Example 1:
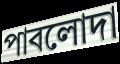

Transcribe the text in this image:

পাবলোদা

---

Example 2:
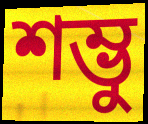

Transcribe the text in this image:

শম্ভু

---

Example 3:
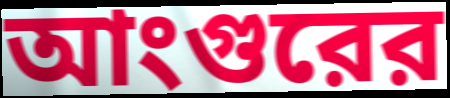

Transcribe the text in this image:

আংগুরের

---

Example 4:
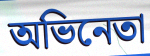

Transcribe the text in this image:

অভিনেতা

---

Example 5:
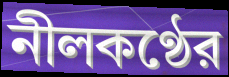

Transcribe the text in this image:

নীলকণ্ঠের